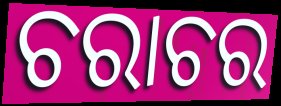
ଚରାଚର